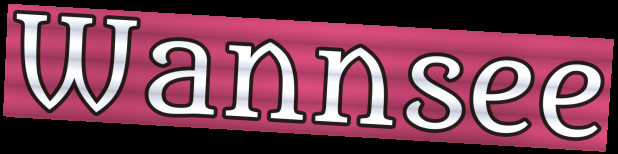
Wannsee